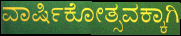
ವಾರ್ಷಿಕೋತ್ಸವಕ್ಕಾಗಿ